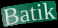
Batik